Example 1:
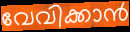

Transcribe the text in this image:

വേവിക്കാൻ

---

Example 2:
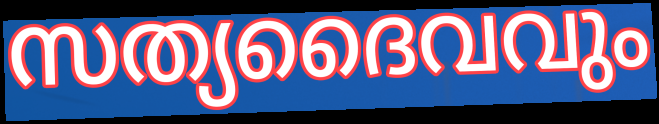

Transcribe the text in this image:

സത്യദൈവവും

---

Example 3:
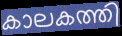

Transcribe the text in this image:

കാലകത്തി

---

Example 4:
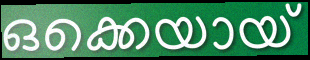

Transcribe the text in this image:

ഒക്കെയായ്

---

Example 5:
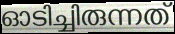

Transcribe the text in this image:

ഓടിച്ചിരുന്നത്